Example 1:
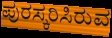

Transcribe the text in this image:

ಪುರಸ್ಕರಿಸಿರುವ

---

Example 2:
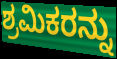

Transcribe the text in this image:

ಶ್ರಮಿಕರನ್ನು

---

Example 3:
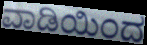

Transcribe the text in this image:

ವಾಡಿಯಿಂದ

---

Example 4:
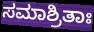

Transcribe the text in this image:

ಸಮಾಶ್ರಿತಾಃ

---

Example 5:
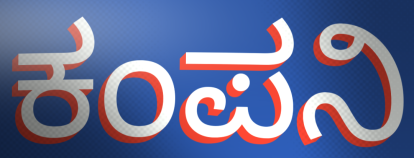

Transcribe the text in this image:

ಕಂಪನಿ